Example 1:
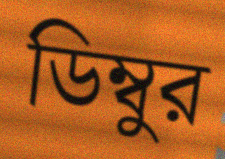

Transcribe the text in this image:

ডিম্বুর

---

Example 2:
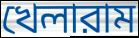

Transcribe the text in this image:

খেলারাম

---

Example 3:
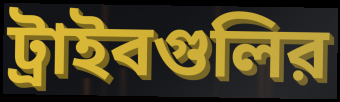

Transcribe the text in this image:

ট্রাইবগুলির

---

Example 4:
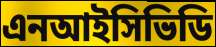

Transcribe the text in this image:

এনআইসিভিডি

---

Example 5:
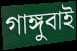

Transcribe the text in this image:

গাঙ্গুবাই